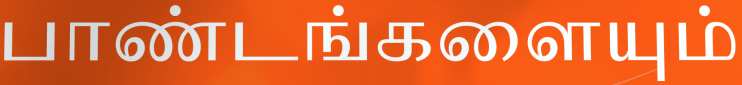
பாண்டங்களையும்